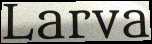
Larva